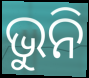
ଭୁନି